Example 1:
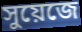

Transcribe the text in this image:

সুয়েজে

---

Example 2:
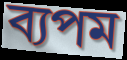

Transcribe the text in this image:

ব্যপম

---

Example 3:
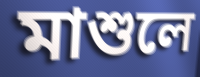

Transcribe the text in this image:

মাশুলে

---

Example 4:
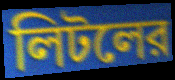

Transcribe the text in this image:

লিটলের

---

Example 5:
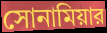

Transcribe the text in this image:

সোনামিয়ার